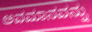
ಅವಮಾನವನ್ನು